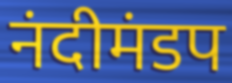
नंदीमंडप